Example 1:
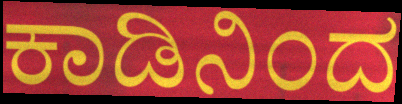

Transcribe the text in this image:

ಕಾಡಿನಿಂದ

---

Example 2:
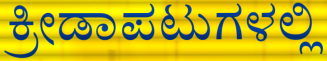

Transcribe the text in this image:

ಕ್ರೀಡಾಪಟುಗಳಲ್ಲಿ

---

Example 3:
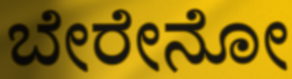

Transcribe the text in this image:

ಬೇರೇನೋ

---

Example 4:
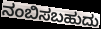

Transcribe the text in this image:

ನಂಬಿಸಬಹುದು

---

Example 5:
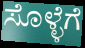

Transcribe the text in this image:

ಸೊಳ್ಳೆಗೆ